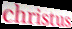
christus